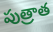
పుత్రాత